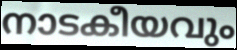
നാടകീയവും